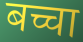
बच्‍चा